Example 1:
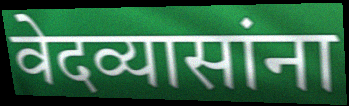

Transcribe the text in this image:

वेदव्यासांना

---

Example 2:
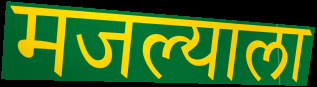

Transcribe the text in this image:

मजल्याला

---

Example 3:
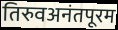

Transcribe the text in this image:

तिरुवअनंतपूरम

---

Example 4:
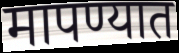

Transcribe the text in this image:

मापण्यात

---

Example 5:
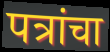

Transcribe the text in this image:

पत्रांचा